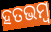
ହତଭମ୍ୱ